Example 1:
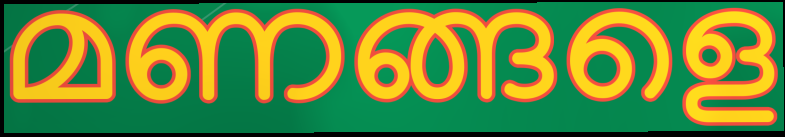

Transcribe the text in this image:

മണങ്ങളെ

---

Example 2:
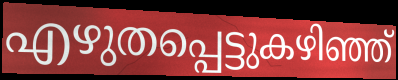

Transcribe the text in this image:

എഴുതപ്പെട്ടുകഴിഞ്ഞ്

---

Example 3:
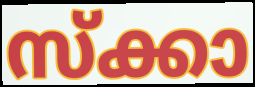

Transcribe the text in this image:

സ്ക്കാ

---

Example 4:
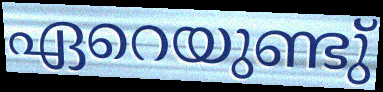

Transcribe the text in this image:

ഏറെയുണ്ടു്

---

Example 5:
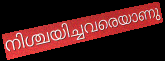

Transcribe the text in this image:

നിശ്ചയിച്ചവരെയാണു